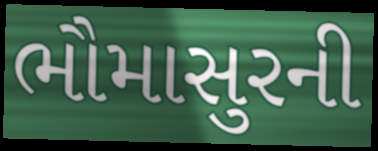
ભૌમાસુરની